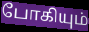
போகியும்